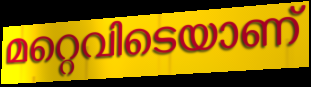
മറ്റെവിടെയാണ്